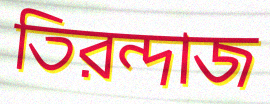
তিরন্দাজ